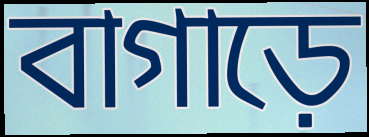
বাগাড়ে